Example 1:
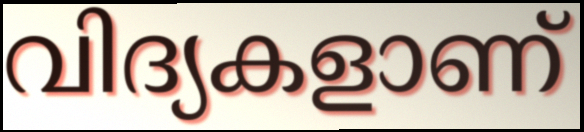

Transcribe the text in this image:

വിദ്യകളാണ്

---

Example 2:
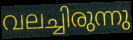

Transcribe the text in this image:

വലച്ചിരുന്നു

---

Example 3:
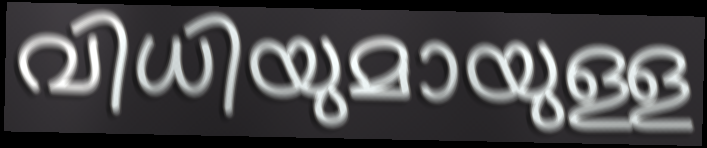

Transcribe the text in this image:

വിധിയുമായുള്ള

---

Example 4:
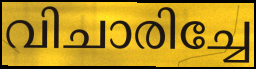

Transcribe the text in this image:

വിചാരിച്ചേ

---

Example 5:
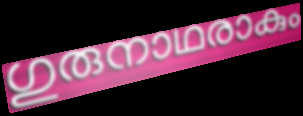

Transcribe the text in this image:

ഗുരുനാഥരാകും